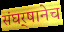
संघर्षानेच